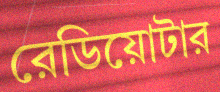
রেডিয়োটার